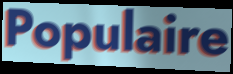
Populaire